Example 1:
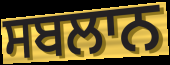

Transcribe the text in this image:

ਸਬਲਾਨ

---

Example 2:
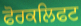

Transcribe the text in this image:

ਫੋਰਕਲਿਫਟ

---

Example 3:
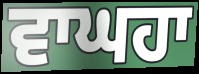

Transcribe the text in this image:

ਵਾਘਹਾ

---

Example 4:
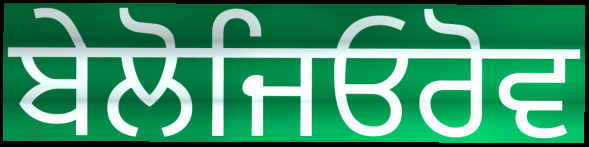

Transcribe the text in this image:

ਬੇਲੋਜਿਓਰੋਵ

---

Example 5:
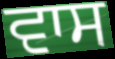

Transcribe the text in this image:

ਵਾਸ